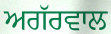
ਅਗੱਰਵਾਲ